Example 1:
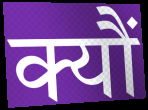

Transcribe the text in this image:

क्यौं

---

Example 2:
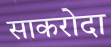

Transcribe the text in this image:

साकरोदा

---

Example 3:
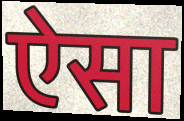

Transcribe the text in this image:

ऐेसा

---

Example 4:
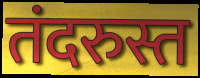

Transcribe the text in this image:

तंदरुस्त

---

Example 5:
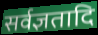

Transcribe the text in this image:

सर्वज्ञतादि